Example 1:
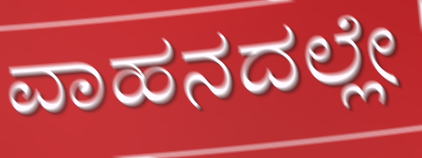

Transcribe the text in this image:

ವಾಹನದಲ್ಲೇ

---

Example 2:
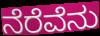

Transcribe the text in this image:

ನೆರೆವೆನು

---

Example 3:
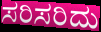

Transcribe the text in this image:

ಸರಿಸರಿದು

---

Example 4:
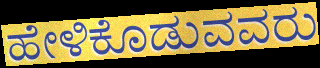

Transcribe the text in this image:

ಹೇಳಿಕೊಡುವವರು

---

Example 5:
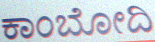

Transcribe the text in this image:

ಕಾಂಬೋದಿ